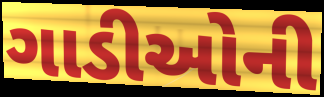
ગાડીઓની